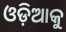
ଓଡ଼ିଆକୁ